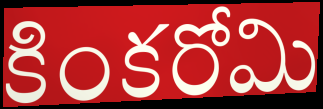
కింకరోమి